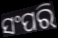
ସଂପରି